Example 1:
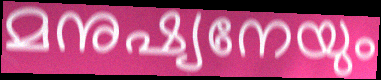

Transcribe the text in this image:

മനുഷ്യനേയും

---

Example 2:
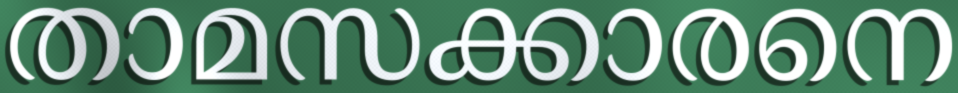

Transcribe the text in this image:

താമസക്കാരനെ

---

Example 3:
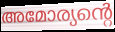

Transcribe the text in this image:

അമോര്യന്റെ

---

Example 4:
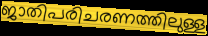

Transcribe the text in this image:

ജാതിപരിചരണത്തിലുള്ള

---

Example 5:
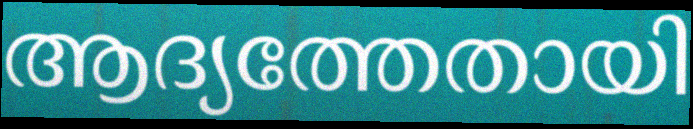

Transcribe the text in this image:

ആദ്യത്തേതായി